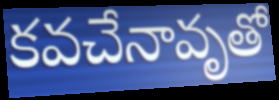
కవచేనావృతో